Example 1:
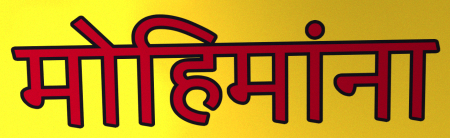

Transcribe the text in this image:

मोहिमांना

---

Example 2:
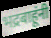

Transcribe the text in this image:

भद्रबाहूंनी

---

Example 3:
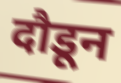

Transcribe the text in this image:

दौडून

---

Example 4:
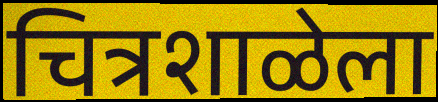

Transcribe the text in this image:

चित्रशाळेला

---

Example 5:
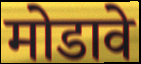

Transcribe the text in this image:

मोडावे